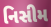
નિસીમ